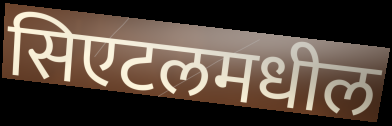
सिएटलमधील